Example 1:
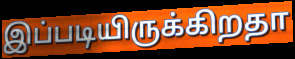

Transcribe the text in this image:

இப்படியிருக்கிறதா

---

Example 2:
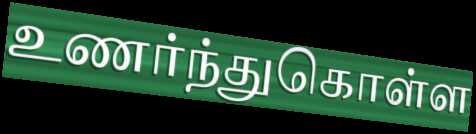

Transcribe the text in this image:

உணர்ந்துகொள்ள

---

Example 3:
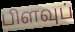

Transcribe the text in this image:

பிளவுப்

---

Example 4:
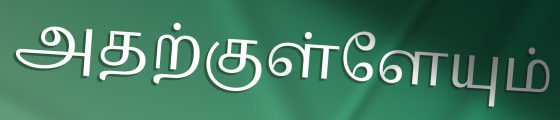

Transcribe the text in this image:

அதற்குள்ளேயும்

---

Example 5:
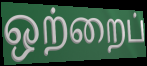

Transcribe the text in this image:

ஒற்றைப்